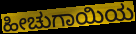
ಹೀಚುಗಾಯಿಯ